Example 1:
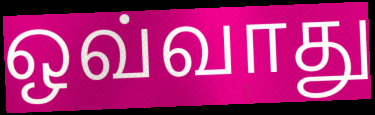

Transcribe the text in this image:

ஒவ்வாது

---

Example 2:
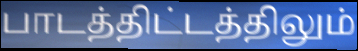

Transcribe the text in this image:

பாடத்திட்டத்திலும்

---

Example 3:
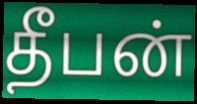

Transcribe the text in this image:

தீபன்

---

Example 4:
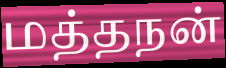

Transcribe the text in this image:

மத்தநன்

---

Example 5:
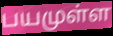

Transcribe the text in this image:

பயமுள்ள